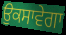
ਉਕਸਾਵੇਗਾ